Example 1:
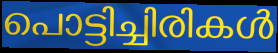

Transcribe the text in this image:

പൊട്ടിച്ചിരികൾ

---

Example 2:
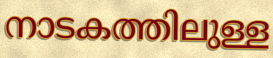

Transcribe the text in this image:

നാടകത്തിലുള്ള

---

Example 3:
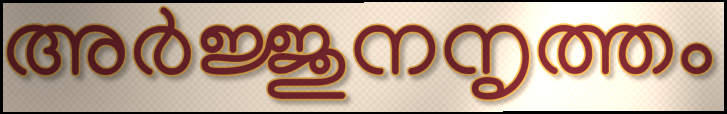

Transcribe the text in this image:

അർജ്ജുനനൃത്തം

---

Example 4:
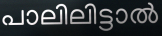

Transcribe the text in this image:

പാലിലിട്ടാൽ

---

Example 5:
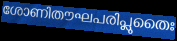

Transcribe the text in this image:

ശോണിതൗഘപരിപ്ലുതൈഃ